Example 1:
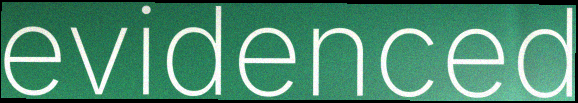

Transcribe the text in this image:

evidenced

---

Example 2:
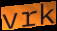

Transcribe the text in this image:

vrk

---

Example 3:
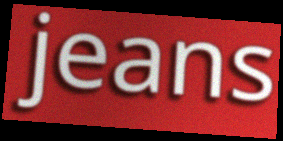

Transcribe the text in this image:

jeans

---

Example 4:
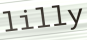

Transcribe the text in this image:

lilly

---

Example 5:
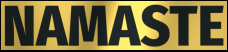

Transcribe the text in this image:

NAMASTE